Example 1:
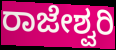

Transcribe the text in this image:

ರಾಜೇಶ್ವರಿ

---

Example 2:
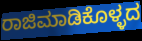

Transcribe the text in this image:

ರಾಜಿಮಾಡಿಕೊಳ್ಳದ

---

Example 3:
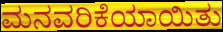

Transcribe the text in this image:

ಮನವರಿಕೆಯಾಯಿತು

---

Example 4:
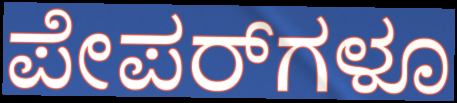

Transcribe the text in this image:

ಪೇಪರ್‌ಗಳೂ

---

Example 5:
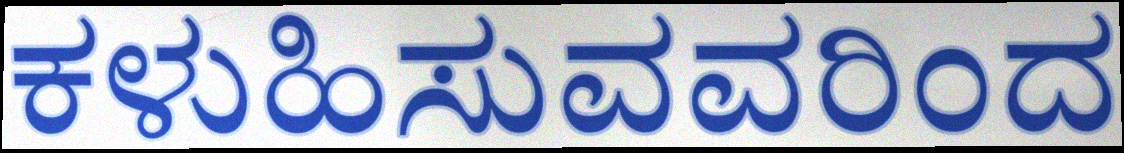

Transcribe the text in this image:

ಕಳುಹಿಸುವವರಿಂದ